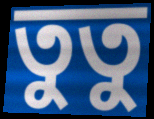
তুতু